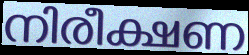
നിരീക്ഷണ